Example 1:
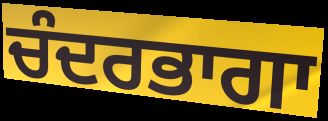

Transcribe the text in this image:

ਚੰਦਰਭਾਗਾ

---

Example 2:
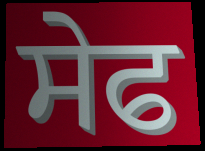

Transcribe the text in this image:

ਸੇਫ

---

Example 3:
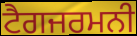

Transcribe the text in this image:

ਟੈਗਜਰਮਨੀ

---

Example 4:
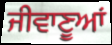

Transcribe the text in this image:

ਜੀਵਾਣੂਆਂ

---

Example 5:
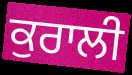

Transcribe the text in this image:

ਕੁਰਾਲੀ